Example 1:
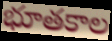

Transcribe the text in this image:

భూతకాల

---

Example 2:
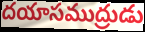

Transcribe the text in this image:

దయాసముద్రుడు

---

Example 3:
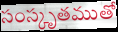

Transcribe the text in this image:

సంస్కృతముతో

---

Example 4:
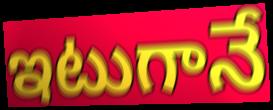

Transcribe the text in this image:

ఇటుగానే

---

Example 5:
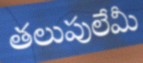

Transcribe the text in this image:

తలుపులేమీ